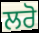
ਲਰੋ